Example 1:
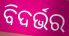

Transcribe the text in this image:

ବିଦର୍ଭର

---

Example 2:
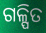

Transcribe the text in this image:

ଗଳ୍ପିତ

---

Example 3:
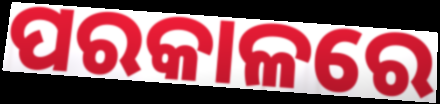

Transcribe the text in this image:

ପରକାଳରେ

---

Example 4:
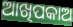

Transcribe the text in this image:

ଆଖିପକାଅ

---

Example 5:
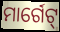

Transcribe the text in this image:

ମାର୍ଗେଟ୍